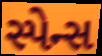
સ્પેન્સ